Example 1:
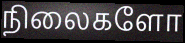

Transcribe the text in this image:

நிலைகளோ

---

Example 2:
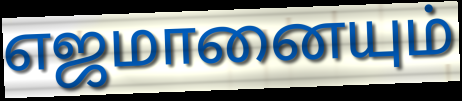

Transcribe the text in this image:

எஜமானையும்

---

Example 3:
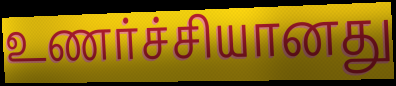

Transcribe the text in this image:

உணர்ச்சியானது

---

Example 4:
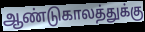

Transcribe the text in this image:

ஆண்டுகாலத்துக்கு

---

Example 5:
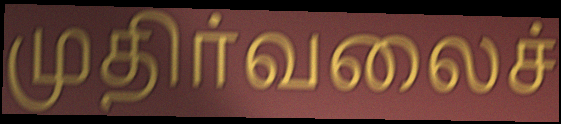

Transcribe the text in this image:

முதிர்வலைச்